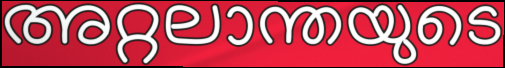
അറ്റലാന്തയുടെ